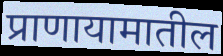
प्राणायामातील